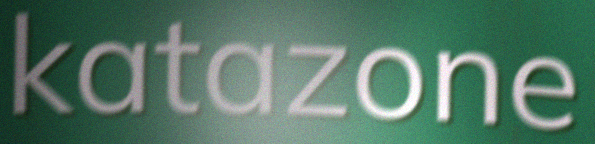
katazone